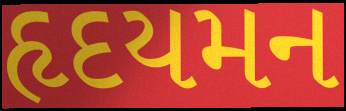
હૃદયમન